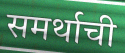
समर्थाची